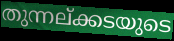
തുന്നല്ക്കടയുടെ